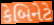
કેબિનેટે